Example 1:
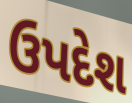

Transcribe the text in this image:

ઉપદેશ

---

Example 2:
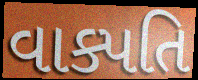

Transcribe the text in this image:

વાક્પતિ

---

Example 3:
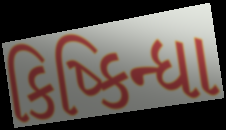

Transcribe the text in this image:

કિષ્કિન્ધા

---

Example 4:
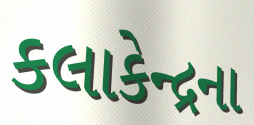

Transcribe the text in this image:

કલાકેન્દ્રના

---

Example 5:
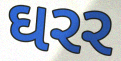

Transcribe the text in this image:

ઘરર